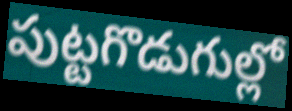
పుట్టగొడుగుల్లో